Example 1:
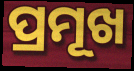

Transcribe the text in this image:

ପ୍ରମୂଖ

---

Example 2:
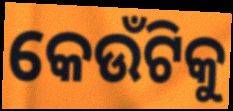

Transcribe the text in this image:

କେଉଁଟିକୁ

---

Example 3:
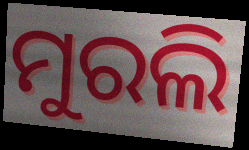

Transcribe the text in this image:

ମୁରଲି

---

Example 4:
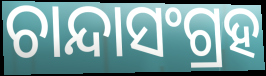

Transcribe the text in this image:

ଚାନ୍ଦାସଂଗ୍ରହ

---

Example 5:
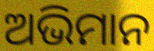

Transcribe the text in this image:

ଅଭିମାନ